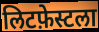
लिटफ़ेस्टला